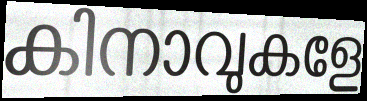
കിനാവുകളേ